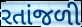
રતાંજળી